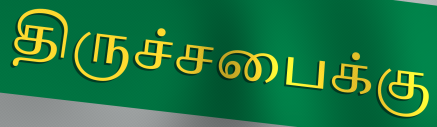
திருச்சபைக்கு